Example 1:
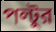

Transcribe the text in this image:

পল্টুর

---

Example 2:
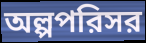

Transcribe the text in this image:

অল্পপরিসর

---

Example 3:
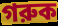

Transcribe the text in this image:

গরুক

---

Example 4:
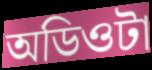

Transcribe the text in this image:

অডিওটা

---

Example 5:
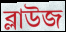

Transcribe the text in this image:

ব্লাউজ